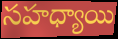
సహధ్యాయి